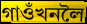
গাওঁখনলৈ